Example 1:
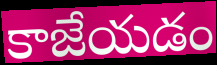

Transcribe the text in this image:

కాజేయడం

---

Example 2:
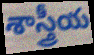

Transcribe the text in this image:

శాస్త్రీయ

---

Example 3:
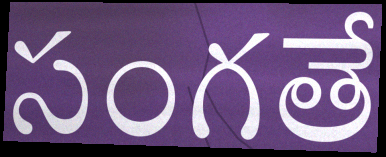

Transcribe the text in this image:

సంగతే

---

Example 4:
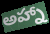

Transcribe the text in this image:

అహ్నా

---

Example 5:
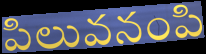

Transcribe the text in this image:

పిలువనంపి